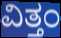
ವಿತ್ತಂ